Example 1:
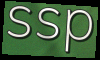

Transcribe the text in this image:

ssp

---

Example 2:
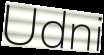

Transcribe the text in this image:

Udni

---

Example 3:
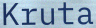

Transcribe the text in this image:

Kruta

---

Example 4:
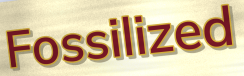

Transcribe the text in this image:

Fossilized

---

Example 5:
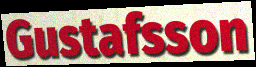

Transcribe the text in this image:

Gustafsson